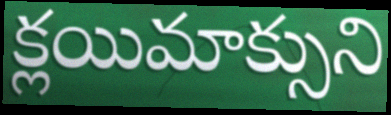
క్లయిమాక్సుని